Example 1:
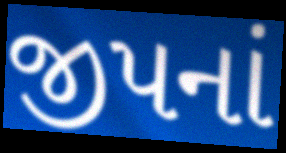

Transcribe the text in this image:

જીપનાં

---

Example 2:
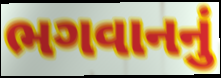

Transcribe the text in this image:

ભગવાનનું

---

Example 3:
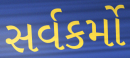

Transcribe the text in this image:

સર્વકર્મો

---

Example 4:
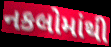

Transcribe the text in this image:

નકલોમાંથી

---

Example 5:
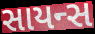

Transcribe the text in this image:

સાયન્સ